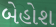
બેહોશ